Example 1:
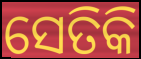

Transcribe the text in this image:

ସେତିକି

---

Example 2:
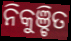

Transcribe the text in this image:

ନିକୁଞ୍ଚିତ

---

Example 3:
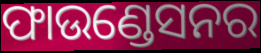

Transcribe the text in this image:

ଫାଉଣ୍ଡେସନର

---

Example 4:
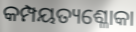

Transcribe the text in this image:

କମ୍ପୟତ୍ୟଶ୍ଳୋକା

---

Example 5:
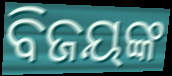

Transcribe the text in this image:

ବିଜୟଙ୍କ